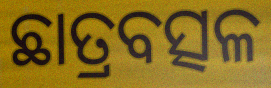
ଛାତ୍ରବତ୍ସଳ